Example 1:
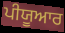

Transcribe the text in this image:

ਪੀਯੂਆਰ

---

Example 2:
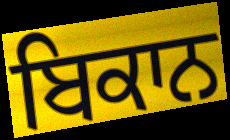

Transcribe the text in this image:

ਬਿਕਾਨ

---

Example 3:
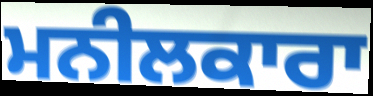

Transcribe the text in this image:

ਮਨੀਲਕਾਰਾ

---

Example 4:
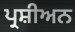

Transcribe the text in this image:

ਪ੍ਰਸ਼ੀਅਨ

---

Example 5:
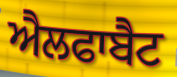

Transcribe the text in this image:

ਐਲਫਾਬੈਟ